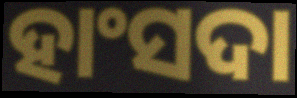
ହାଂସଦା